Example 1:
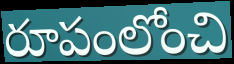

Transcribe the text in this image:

రూపంలోంచి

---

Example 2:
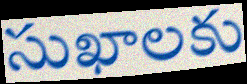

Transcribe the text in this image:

సుఖాలకు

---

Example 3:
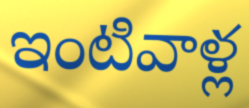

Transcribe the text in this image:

ఇంటివాళ్ల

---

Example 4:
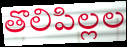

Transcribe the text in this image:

తొలిపిల్లల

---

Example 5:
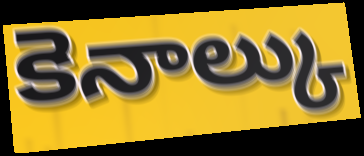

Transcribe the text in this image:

కెనాల్కు